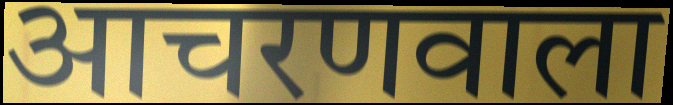
आचरणवाला